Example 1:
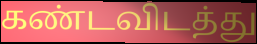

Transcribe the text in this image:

கண்டவிடத்து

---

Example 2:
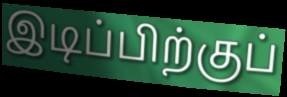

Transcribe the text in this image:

இடிப்பிற்குப்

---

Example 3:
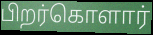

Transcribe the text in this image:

பிறர்கொளார்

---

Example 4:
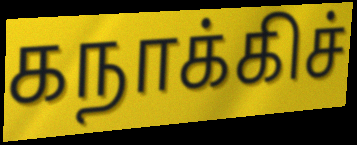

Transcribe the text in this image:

கநாக்கிச்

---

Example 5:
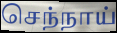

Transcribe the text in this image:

செந்நாய்